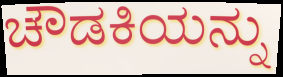
ಚೌಡಕಿಯನ್ನು